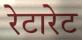
रेटारेट